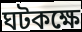
ঘটকক্ষে